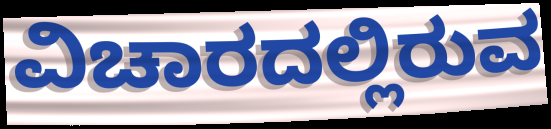
ವಿಚಾರದಲ್ಲಿರುವ